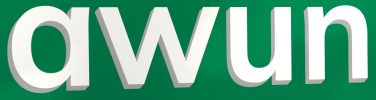
awun